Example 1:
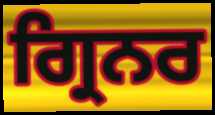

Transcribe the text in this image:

ਗ੍ਰਿਨਰ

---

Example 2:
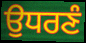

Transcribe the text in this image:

ਉਧਰਣੰ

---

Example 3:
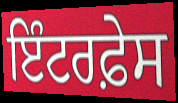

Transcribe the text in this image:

ਇੰਟਰਫ਼ੇਸ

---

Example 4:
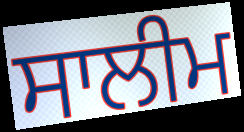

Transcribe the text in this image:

ਸਾਲੀਮ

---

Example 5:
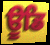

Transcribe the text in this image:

ਊਡਿ